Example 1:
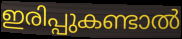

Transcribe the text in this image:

ഇരിപ്പുകണ്ടാൽ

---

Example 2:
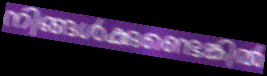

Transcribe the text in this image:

നിങ്ങൾക്കുണ്ടെങ്കിൽ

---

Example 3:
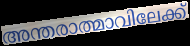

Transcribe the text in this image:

അന്തരാത്മാവിലേക്ക്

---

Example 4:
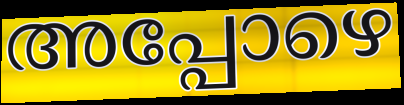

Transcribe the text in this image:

അപ്പോഴെ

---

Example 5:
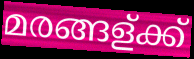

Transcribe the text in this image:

മരങ്ങള്ക്ക്